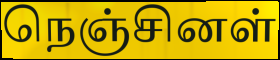
நெஞ்சினள்